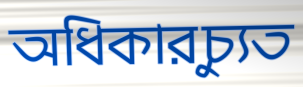
অধিকারচ্যুত